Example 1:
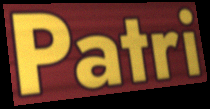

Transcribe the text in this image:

Patri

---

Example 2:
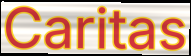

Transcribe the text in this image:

Caritas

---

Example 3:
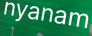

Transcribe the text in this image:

nyanam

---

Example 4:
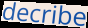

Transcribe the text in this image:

decribe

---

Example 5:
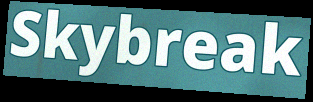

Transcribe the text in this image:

Skybreak